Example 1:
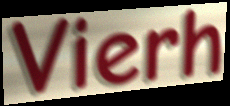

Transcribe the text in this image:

Vierh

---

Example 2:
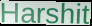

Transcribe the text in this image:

Harshit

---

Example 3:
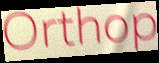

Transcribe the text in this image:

Orthop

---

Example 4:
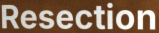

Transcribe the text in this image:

Resection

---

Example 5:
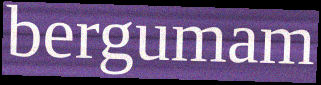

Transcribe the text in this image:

bergumam